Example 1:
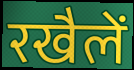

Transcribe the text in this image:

रखैलें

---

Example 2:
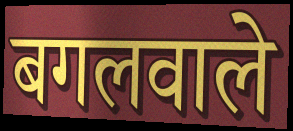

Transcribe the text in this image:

बगलवाले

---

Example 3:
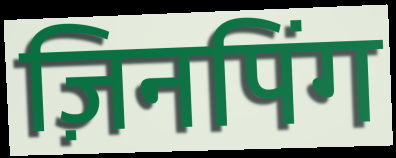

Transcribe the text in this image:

ज़िनपिंग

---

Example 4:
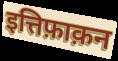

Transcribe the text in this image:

इत्तिफ़ाक़न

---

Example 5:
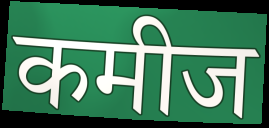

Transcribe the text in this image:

कमीज